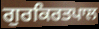
ਗੁਰਕਿਰਤਪਾਲ